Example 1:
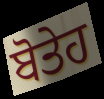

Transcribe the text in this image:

ਬੋਤੇਹ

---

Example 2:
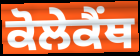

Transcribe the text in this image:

ਕੋਲੇਕੈਂਥ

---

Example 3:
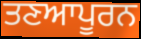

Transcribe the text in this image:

ਤਣਆਪੂਰਨ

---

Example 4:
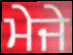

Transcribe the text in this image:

ਮੇਜੇ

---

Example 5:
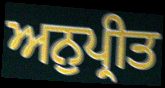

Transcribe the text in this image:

ਅਨੁਪ੍ਰੀਤ